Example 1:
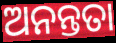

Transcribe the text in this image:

ଅନନ୍ତତା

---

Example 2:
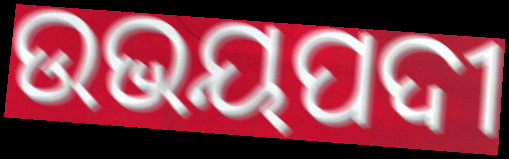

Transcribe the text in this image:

ଉଭୟପଦୀ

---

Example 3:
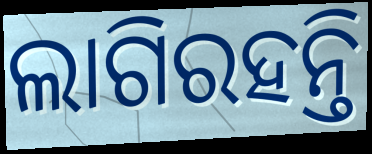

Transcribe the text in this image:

ଲାଗିରହନ୍ତି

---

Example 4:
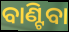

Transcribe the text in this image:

ବାଣ୍ଟିବା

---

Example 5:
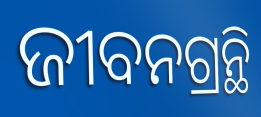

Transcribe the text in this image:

ଜୀବନଗ୍ରନ୍ଥି